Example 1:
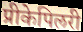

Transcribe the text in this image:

प्रीकेपिलरी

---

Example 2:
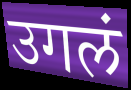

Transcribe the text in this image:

उगलं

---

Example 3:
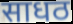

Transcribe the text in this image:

साधठ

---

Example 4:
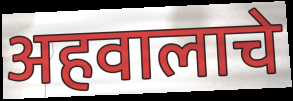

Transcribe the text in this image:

अहवालाचे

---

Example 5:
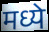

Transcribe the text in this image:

मध्ये